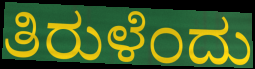
ತಿರುಳೆಂದು